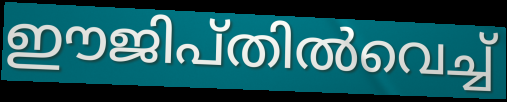
ഈജിപ്തിൽവെച്ച്